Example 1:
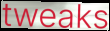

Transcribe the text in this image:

tweaks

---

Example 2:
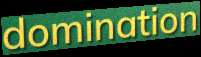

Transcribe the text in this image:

domination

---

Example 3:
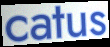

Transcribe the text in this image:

catus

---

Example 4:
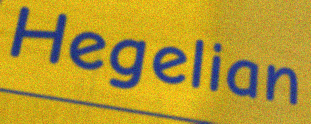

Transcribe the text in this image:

Hegelian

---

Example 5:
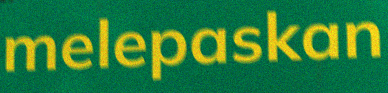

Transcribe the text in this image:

melepaskan